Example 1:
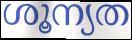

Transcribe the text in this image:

ശൂന്യത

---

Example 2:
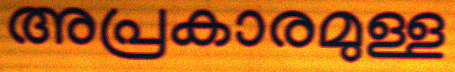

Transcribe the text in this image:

അപ്രകാരമുള്ള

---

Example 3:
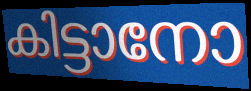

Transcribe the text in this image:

കിട്ടാനോ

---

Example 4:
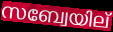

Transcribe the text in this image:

സബ്വേയില്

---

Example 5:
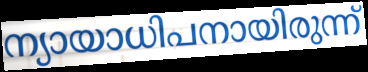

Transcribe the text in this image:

ന്യായാധിപനായിരുന്ന്